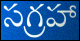
సగ్రహా